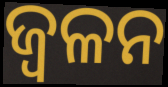
ଜ୍ଵଳନ